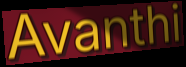
Avanthi